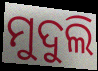
ମୁଦୁଲି